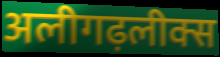
अलीगढ़लीक्स